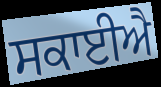
ਸਕਾਈਐ